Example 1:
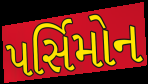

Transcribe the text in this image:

પર્સિમોન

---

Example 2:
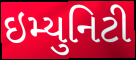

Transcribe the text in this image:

ઇમ્યુનિટી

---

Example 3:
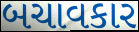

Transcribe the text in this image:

બચાવકાર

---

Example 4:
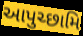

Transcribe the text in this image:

આપુચ્છામિ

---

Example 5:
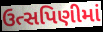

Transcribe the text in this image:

ઉત્સપિણીમાં